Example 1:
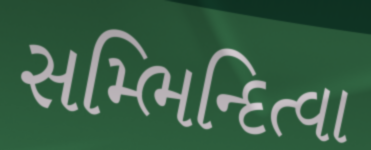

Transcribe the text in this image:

સમ્ભિન્દિત્વા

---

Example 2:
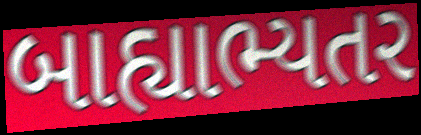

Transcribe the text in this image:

બાહ્યાભ્યતર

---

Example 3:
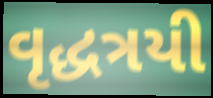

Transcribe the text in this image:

વૃદ્ધત્રયી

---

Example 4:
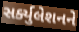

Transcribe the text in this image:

સર્ક્યુલેશનને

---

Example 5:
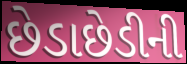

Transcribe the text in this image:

છેડાછેડીની